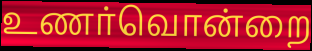
உணர்வொன்றை